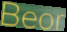
Beor